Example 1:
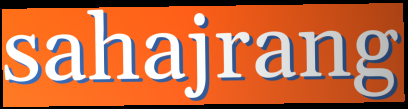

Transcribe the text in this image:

sahajrang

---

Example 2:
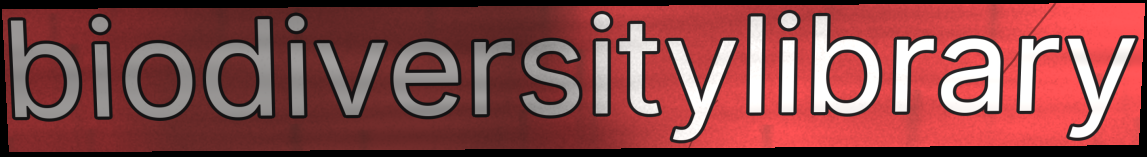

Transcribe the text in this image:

biodiversitylibrary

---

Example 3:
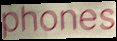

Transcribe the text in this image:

phones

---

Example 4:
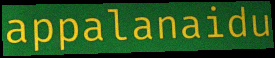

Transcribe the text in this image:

appalanaidu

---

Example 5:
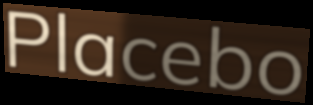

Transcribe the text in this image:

Placebo